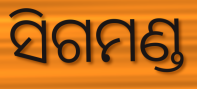
ସିଗମଣ୍ଡ